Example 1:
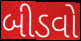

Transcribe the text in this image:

બીડવો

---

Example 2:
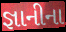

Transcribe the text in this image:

જ્ઞાનીના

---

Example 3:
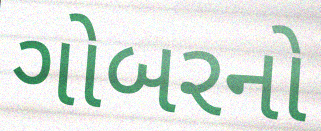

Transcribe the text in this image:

ગોબરનો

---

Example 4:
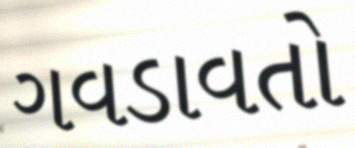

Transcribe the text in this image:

ગવડાવતો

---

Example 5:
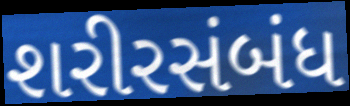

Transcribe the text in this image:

શરીરસંબંધ